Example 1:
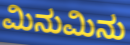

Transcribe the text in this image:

ಮಿನುಮಿನು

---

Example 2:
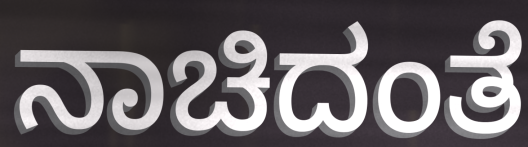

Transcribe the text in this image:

ನಾಚಿದಂತೆ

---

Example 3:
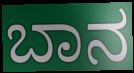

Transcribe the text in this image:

ಬಾನ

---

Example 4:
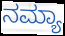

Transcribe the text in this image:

ನಮ್ಯಾ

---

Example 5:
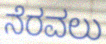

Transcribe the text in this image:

ನೆರವಲು